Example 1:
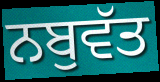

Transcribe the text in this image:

ਨਬੁਵੱਤ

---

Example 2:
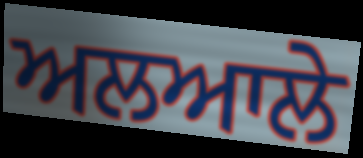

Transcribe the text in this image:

ਅਲਆਲੇ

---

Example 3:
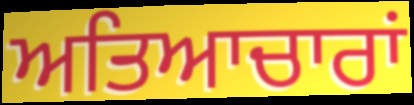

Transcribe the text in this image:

ਅਤਿਆਚਾਰਾਂ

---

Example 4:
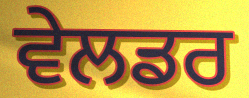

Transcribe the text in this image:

ਵੇਲਡਰ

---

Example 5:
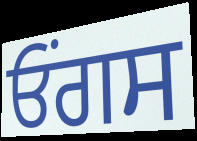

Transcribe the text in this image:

ਓਂਗਸ